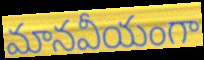
మానవీయంగా